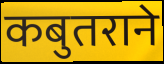
कबुतराने